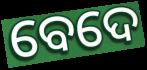
ବେଦେ